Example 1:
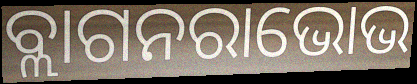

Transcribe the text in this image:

ବ୍ଲାଗନରାଭୋଭ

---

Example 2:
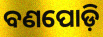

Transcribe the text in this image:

ବଣପୋଡ଼ି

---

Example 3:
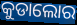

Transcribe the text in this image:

କୁଡାଲୋର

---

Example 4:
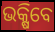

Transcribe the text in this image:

ଭକ୍ଷିବେ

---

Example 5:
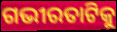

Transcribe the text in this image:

ଗଭୀରତାଟିକୁ